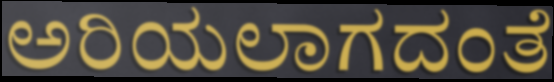
ಅರಿಯಲಾಗದಂತೆ